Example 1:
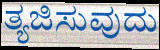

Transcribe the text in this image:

ತ್ಯಜಿಸುವುದು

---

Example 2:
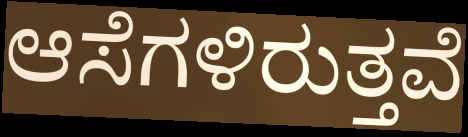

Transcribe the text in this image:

ಆಸೆಗಳಿರುತ್ತವೆ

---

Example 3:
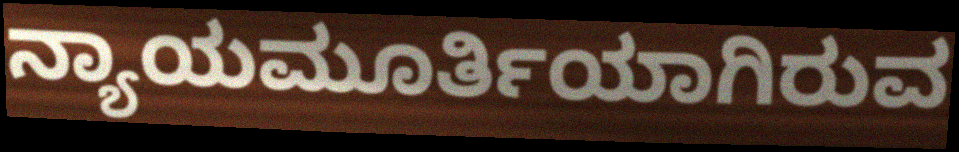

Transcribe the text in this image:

ನ್ಯಾಯಮೂರ್ತಿಯಾಗಿರುವ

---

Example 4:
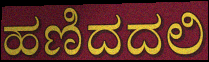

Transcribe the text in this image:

ಹಣಿದದಲಿ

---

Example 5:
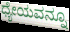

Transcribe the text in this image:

ಧ್ಯೇಯವನ್ನೂ